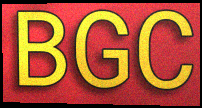
BGC